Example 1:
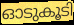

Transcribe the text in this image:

ഓടുകൂടി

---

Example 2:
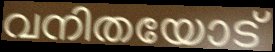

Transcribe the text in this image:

വനിതയോട്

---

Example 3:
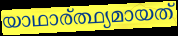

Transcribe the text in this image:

യാഥാര്ത്ഥ്യമായത്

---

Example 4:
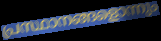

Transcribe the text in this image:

പ്രസ്ഥാനങ്ങളൊന്നും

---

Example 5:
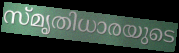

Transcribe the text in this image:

സ്മൃതിധാരയുടെ